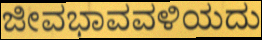
ಜೀವಭಾವವಳಿಯದು